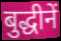
बुद्धीनें